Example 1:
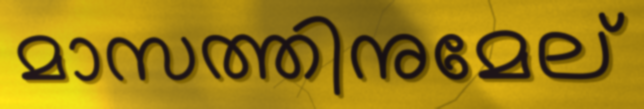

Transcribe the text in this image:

മാസത്തിനുമേല്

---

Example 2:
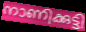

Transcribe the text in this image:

നാണിക്കുട്ടി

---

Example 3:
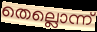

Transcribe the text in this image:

തെല്ലൊന്ന്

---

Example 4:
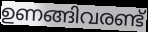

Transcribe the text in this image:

ഉണങ്ങിവരണ്ട്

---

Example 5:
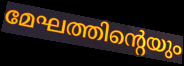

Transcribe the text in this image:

മേഘത്തിന്റെയും